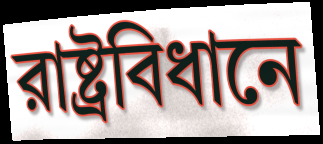
রাষ্ট্রবিধানে